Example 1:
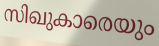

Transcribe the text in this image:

സിഖുകാരെയും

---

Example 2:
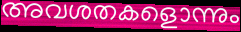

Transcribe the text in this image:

അവശതകളൊന്നും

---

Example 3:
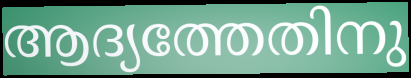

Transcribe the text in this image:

ആദ്യത്തേതിനു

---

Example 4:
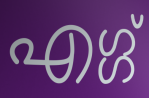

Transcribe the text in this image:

എഗ്ഗ്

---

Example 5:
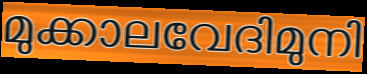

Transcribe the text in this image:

മുക്കാലവേദിമുനി